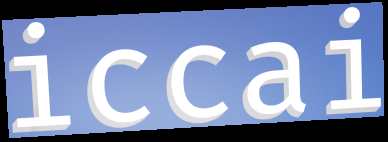
iccai